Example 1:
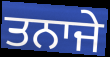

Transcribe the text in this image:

ਤਨਾਜੇ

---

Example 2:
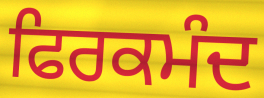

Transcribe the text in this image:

ਫਿਰਕਮੰਦ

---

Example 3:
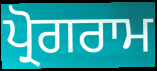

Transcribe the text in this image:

ਪ੍ਰ੍ਰੋਗਰਾਮ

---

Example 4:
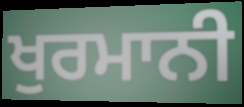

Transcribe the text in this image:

ਖੁਰਮਾਨੀ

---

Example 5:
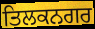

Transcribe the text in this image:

ਤਿਲਕਨਗਰ